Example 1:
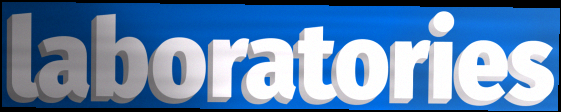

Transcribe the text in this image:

laboratories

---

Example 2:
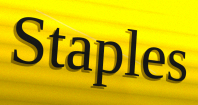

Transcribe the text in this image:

Staples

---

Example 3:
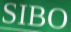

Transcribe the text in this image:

SIBO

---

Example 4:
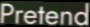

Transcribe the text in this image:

Pretend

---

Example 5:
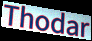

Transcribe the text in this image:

Thodar